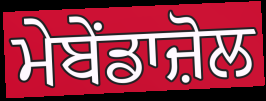
ਮੇਬੇਂਡਾਜ਼ੋਲ